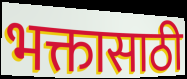
भक्तासाठी